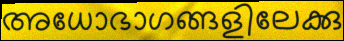
അധോഭാഗങ്ങളിലേക്കു